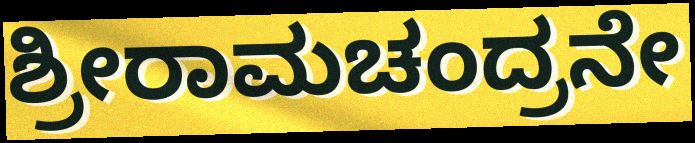
ಶ್ರೀರಾಮಚಂದ್ರನೇ